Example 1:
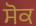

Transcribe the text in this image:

ਸੋਕ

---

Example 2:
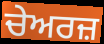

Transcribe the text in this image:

ਚੇਅਰਜ਼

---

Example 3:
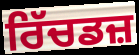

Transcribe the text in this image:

ਰਿੱਚਡਜ਼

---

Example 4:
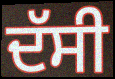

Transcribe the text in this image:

ਦੱਸੀ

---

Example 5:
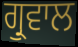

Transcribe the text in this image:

ਗ੍ਰੁਵਾਲ